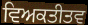
ਵਿਅਕਤੀਤਵ